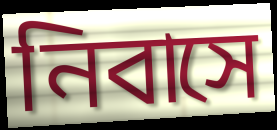
নিবাসে